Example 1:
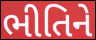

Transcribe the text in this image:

ભીતિને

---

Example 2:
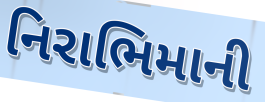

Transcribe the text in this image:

નિરાભિમાની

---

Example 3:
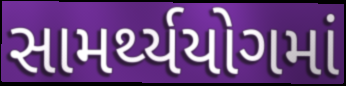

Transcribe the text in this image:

સામર્થ્યયોગમાં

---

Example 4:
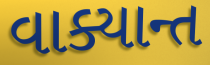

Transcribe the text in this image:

વાક્યાન્ત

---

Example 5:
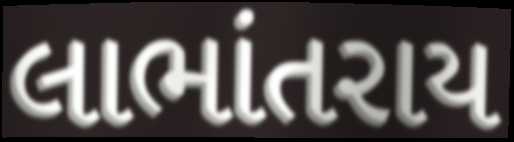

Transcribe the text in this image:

લાભાંતરાય